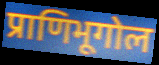
प्राणिभूगोल